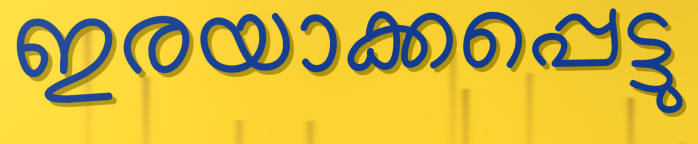
ഇരയാക്കപ്പെട്ടു